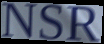
NSR